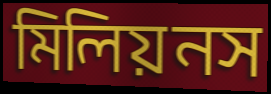
মিলিয়নস